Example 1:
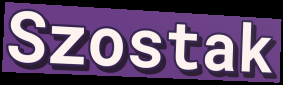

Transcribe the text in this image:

Szostak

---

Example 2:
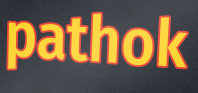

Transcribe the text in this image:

pathok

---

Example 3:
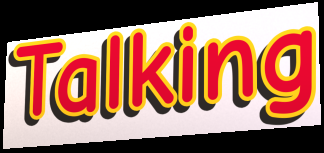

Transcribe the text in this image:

Talking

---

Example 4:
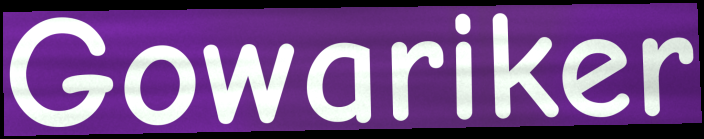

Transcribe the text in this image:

Gowariker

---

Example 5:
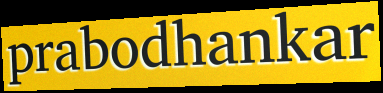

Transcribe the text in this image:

prabodhankar